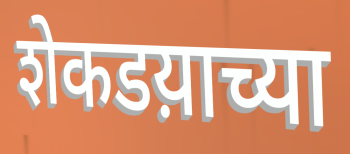
शेकडय़ाच्या